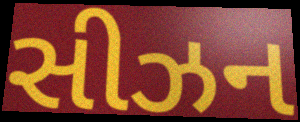
સીઝન